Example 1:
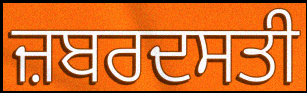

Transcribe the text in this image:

ਜ਼ਬਰਦਸਤੀ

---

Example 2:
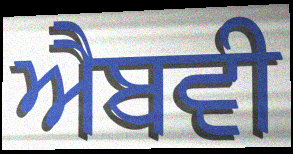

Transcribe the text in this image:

ਐਬਵੀ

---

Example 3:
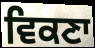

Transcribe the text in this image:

ਵਿਕਣਾ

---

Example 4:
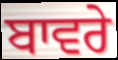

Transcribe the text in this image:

ਬਾਵਰੇ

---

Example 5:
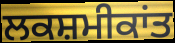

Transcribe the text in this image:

ਲਕਸ਼ਮੀਕਾਂਤ